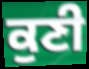
ਕੁਣੀ